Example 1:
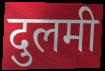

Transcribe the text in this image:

दुलमी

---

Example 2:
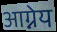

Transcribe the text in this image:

आग्नेय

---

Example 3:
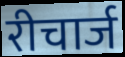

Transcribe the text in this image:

रीचार्ज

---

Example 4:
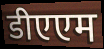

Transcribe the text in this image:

डीएएम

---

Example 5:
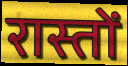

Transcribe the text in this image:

रास्‍तों